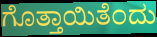
ಗೊತ್ತಾಯಿತೆಂದು